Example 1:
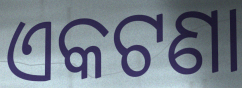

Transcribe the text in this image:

ଏକଟଣା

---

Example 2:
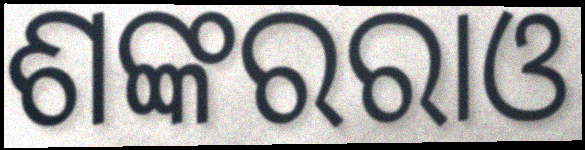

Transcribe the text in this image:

ଶଙ୍କରରାଓ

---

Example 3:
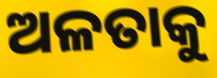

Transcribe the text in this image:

ଅଳତାକୁ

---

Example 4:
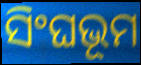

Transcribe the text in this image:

ସିଂଘଭୂମ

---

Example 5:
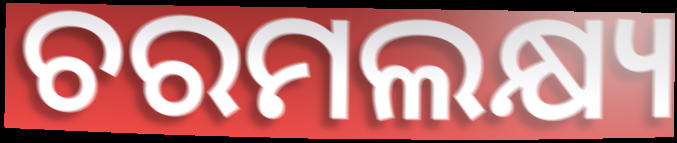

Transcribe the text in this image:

ଚରମଲକ୍ଷ୍ୟ